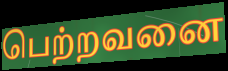
பெற்றவனை